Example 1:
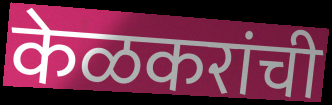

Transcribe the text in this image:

केळकरांची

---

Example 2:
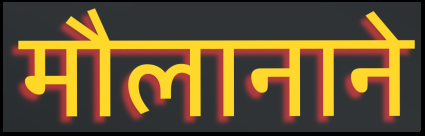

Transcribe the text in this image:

मौलानाने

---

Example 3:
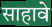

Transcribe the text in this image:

साहावे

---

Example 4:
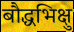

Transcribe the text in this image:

बौद्धभिक्षु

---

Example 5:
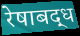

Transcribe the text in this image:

रेषाबद्ध